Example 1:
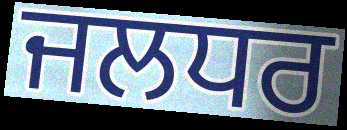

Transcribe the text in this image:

ਜਲਧਰ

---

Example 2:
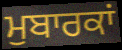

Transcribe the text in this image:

ਮੁਬਾਰਕਾਂ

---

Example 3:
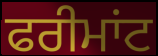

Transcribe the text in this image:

ਫਰੀਮਾਂਟ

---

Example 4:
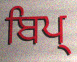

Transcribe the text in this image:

ਬਿਪ੍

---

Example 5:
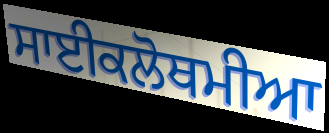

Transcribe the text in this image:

ਸਾਈਕਲੋਥਮੀਆ